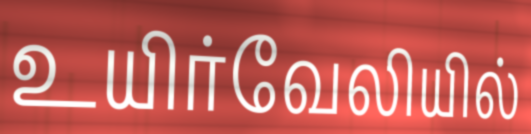
உயிர்வேலியில்